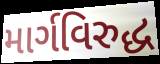
માર્ગવિરુદ્ધ